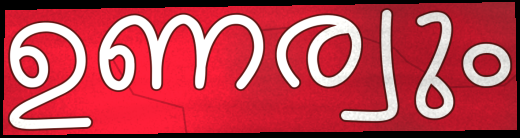
ഉണര്വും